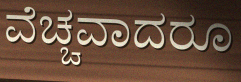
ವೆಚ್ಚವಾದರೂ